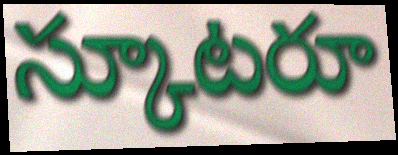
స్కూటరూ